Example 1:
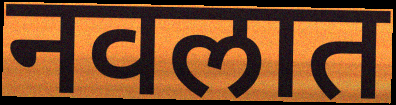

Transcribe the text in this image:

नवलात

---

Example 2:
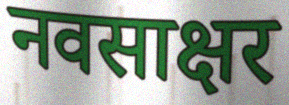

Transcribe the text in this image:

नवसाक्षर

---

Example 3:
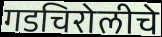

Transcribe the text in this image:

गडचिरोलीचे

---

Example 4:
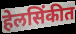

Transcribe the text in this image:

हेलसिंकीत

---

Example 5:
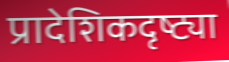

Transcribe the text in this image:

प्रादेशिकदृष्ट्या